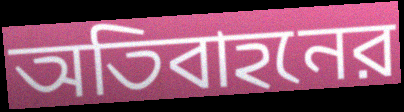
অতিবাহনের